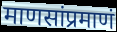
माणसांप्रमाणं